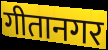
गीतानगर